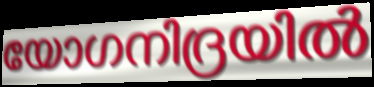
യോഗനിദ്രയിൽ